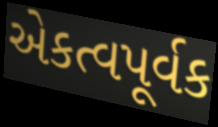
એકત્વપૂર્વક